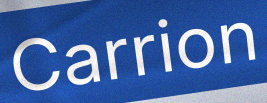
Carrion